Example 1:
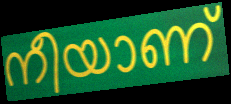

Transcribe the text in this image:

നീയാണ്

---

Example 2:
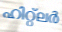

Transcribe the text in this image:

ഹിറ്റ്ലർ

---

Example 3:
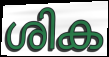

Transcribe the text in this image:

ശിക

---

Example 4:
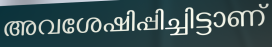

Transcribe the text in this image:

അവശേഷിപ്പിച്ചിട്ടാണ്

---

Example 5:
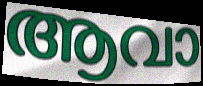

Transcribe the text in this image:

ആവാ